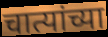
चात्यांच्या